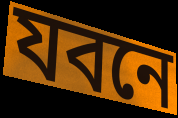
যবনে